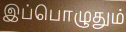
இப்பொழுதும்